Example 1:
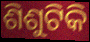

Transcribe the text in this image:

ଶିଶୁଟିକି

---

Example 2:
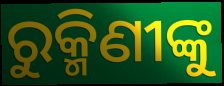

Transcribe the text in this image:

ରୁକ୍ମିଣୀଙ୍କୁ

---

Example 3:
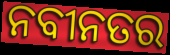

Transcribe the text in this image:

ନବୀନତର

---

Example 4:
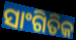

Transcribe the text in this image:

ସାଂଗିତିକ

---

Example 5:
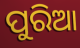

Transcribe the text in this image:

ପୁରିଆ